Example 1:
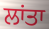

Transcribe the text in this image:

ਲਾਂਤਾ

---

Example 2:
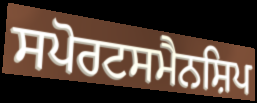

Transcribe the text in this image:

ਸਪੋਰਟਸਮੈਨਸ਼ਿਪ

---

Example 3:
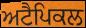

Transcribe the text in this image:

ਅਟੈਪਿਕਲ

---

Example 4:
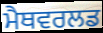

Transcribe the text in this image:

ਮੈਥਵਰਲਡ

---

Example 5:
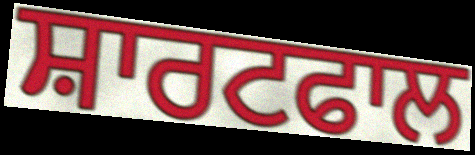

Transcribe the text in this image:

ਸ਼ਾਰਟਫਾਲ